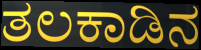
ತಲಕಾಡಿನ